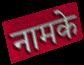
नामके